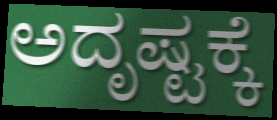
ಅದೃಷ್ಟಕ್ಕೆ